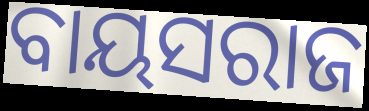
ବାୟସରାଜ